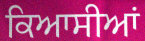
ਕਿਆਸੀਆਂ